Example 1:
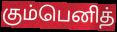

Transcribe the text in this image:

கும்பெனித்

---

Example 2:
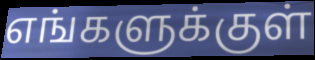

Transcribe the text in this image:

எங்களுக்குள்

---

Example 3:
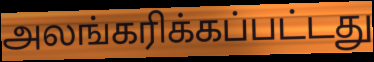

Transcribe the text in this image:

அலங்கரிக்கப்பட்டது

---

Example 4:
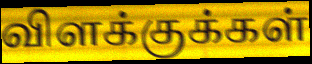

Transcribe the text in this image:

விளக்குக்கள்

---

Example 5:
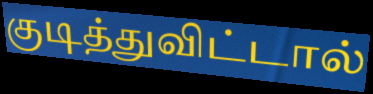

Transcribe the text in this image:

குடித்துவிட்டால்